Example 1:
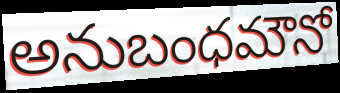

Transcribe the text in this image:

అనుబంధమౌనో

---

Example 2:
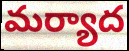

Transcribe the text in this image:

మర్యాద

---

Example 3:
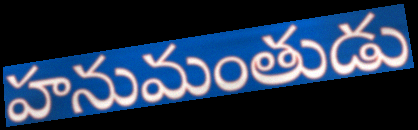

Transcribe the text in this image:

హనుమంతుడు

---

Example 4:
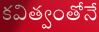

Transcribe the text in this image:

కవిత్వంతోనే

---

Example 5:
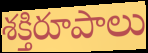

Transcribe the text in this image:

శక్తిరూపాలు